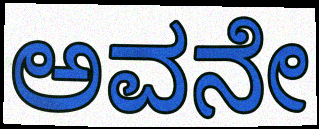
ಅವನೇ